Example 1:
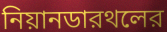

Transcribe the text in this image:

নিয়ানডারথলের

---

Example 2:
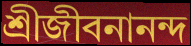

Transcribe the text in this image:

শ্রীজীবনানন্দ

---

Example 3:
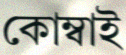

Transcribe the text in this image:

কোম্বাই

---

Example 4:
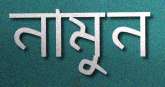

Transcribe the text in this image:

নামুন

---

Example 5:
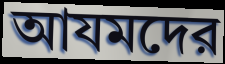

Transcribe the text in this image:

আযমদের